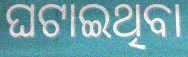
ଘଟାଇଥିବା